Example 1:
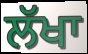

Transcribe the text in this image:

ਲੱਖਾ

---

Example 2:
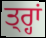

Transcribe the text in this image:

ਤ੍ਰ੍ਹਾਂ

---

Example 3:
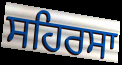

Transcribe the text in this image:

ਸਹਿਰਸਾ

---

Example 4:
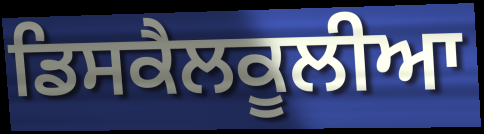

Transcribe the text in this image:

ਡਿਸਕੈਲਕੂਲੀਆ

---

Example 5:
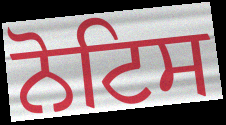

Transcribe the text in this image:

ਨੋਟਿਸ